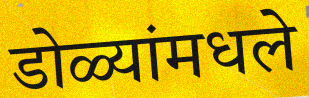
डोळ्यांमधले